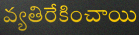
వ్యతిరేకించాయి